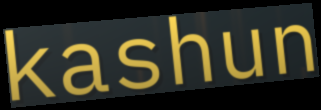
kashun